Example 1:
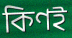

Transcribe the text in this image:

কিণই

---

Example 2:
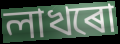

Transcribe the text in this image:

লাখৰো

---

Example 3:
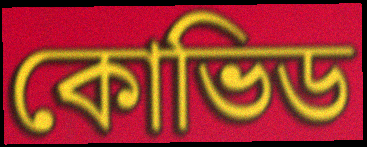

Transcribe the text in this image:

কোভিড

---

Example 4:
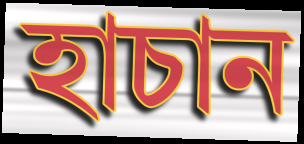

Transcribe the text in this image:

হাচান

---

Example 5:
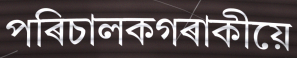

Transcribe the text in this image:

পৰিচালকগৰাকীয়ে